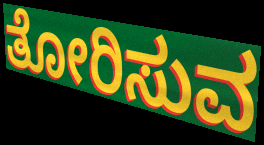
ತೋರಿಸುವ